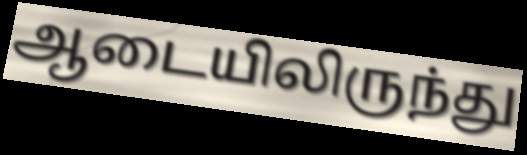
ஆடையிலிருந்து